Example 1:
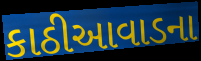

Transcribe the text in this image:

કાઠીઆવાડના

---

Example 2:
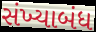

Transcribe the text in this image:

સંખ્યાબંધ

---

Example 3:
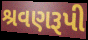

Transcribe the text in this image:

શ્રવણરૂપી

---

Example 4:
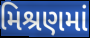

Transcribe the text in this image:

મિશ્રણમાં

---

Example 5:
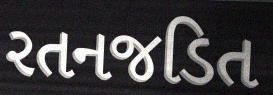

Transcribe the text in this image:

રતનજડિત